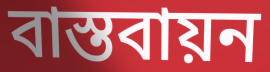
বাস্তবায়ন